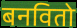
बनवितो